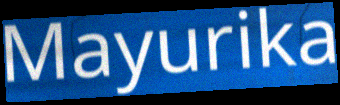
Mayurika